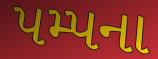
પમ્પના